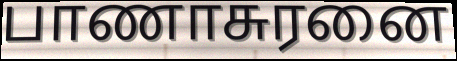
பாணாசுரனை